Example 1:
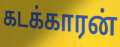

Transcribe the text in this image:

கடக்காரன்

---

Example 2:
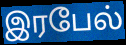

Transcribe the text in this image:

இரபேல்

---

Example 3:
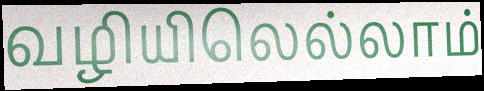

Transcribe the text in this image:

வழியிலெல்லாம்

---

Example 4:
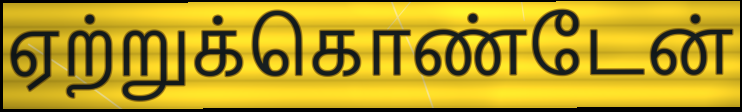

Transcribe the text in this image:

ஏற்றுக்கொண்டேன்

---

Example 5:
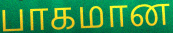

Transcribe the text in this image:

பாகமான